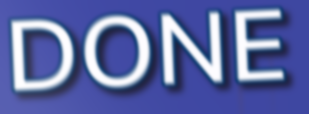
DONE